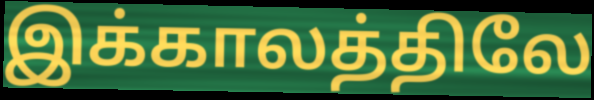
இக்காலத்திலே